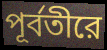
পূর্বতীরে